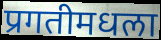
प्रगतीमधला